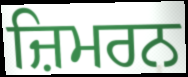
ਜ਼ਿਮਰਨ